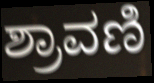
ಶ್ರಾವಣಿ